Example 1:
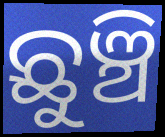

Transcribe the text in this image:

ଛୁଞ୍ଚି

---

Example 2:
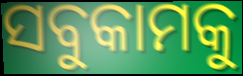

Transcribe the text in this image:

ସବୁକାମକୁ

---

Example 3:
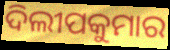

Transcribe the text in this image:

ଦିଲୀପକୁମାର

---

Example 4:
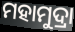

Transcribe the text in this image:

ମହାମୁଦ୍ରା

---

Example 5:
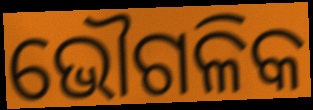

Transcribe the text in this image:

ଭୌଗଳିକ